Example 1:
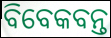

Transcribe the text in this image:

ବିବେକବନ୍ତ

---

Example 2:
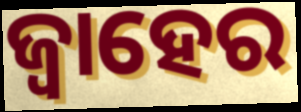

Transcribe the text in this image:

ଜ୍ୱାହେର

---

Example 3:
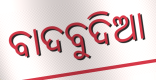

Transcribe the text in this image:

ବାଦବୁଦିଆ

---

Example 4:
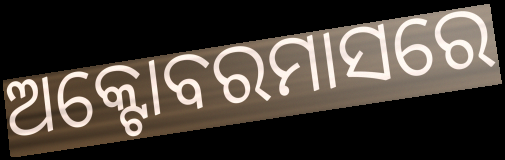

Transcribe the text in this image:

ଅକ୍ଟୋବରମାସରେ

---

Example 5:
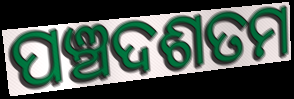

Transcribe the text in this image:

ପଞ୍ଚଦଶତମ